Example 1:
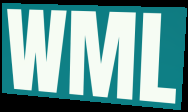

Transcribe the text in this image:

WML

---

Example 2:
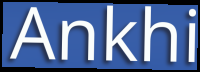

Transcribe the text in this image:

Ankhi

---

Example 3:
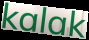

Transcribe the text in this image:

kalak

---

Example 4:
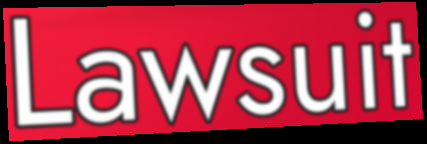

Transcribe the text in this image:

Lawsuit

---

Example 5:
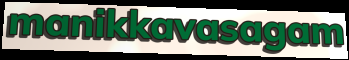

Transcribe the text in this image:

manikkavasagam